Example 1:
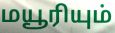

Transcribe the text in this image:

மயூரியும்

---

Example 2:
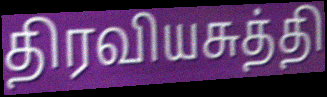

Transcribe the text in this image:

திரவியசுத்தி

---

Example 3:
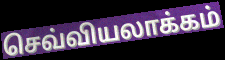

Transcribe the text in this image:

செவ்வியலாக்கம்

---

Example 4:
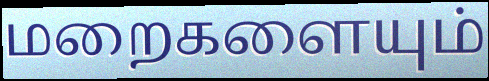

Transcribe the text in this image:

மறைகளையும்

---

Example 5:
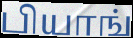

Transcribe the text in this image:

பியாங்